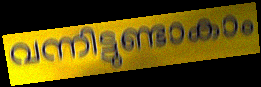
വന്നിട്ടുണ്ടാകാം